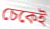
চেকেই